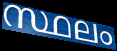
സ്ഥലം